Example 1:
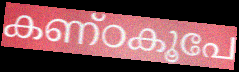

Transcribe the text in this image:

കണ്ഠകൂപേ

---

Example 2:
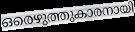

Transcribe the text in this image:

ഒരെഴുത്തുകാരനായി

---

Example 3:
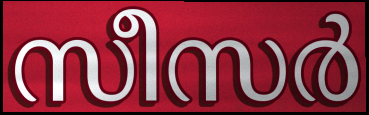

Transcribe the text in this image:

സീസർ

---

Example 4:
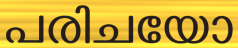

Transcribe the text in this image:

പരിചയോ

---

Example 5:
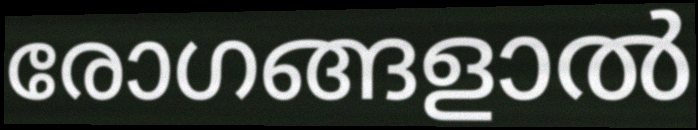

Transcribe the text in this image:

രോഗങ്ങളാൽ